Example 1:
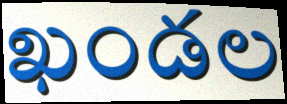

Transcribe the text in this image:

ఖండల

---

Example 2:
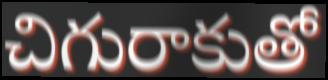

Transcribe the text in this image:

చిగురాకుతో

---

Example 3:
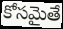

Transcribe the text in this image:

కోసమైతే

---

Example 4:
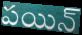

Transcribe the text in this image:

పయిన్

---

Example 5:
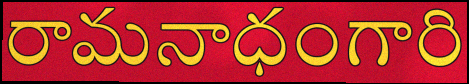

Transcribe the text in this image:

రామనాధంగారి